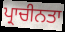
ਪ੍ਰਾਚੀਨਤਾ